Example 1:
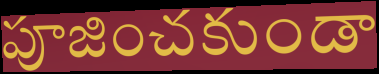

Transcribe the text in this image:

పూజించకుండా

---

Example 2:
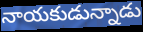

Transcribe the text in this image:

నాయకుడున్నాడు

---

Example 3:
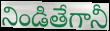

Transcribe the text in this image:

నిండితేగానీ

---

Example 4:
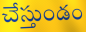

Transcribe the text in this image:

చేస్తుండం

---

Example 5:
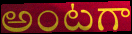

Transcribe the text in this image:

అంటగా